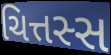
ચિત્તસ્સ